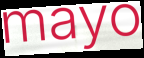
mayo